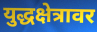
युद्धक्षेत्रावर